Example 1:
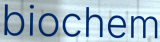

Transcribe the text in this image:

biochem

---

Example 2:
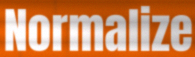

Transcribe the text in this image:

Normalize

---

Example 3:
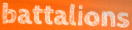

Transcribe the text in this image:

battalions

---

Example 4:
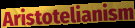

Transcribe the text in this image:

Aristotelianism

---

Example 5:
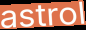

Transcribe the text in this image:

astrol